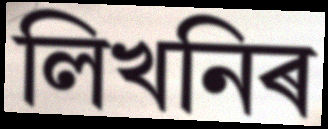
লিখনিৰ